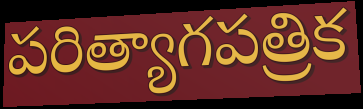
పరిత్యాగపత్రిక